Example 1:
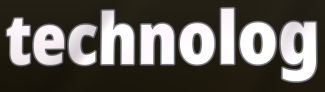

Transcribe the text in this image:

technolog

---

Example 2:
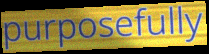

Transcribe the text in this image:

purposefully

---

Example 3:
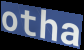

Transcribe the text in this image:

otha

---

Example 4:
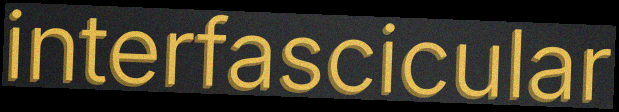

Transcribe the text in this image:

interfascicular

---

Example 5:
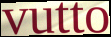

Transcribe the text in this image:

vutto